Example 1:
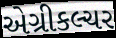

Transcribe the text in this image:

એગ્રીકલ્ચર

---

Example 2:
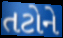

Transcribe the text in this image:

તટોને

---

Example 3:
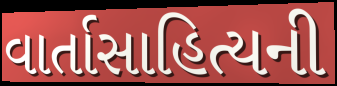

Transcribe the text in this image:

વાર્તાસાહિત્યની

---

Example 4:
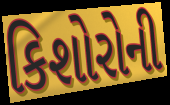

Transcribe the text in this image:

કિશોરોની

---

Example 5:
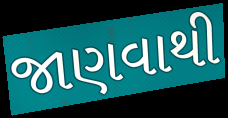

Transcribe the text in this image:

જાણવાથી